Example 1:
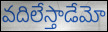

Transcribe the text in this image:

వదిలేస్తాడేమో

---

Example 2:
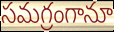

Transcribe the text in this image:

సమగ్రంగానూ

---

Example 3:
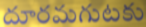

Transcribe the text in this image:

దూరమగుటకు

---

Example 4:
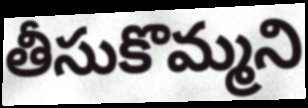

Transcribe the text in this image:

తీసుకొమ్మని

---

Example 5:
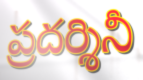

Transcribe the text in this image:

ప్రదర్శినీ